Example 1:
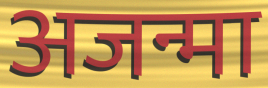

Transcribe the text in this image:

अजन्मा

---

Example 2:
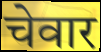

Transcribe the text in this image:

चेवार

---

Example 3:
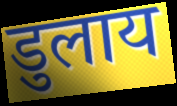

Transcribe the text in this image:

डुलाय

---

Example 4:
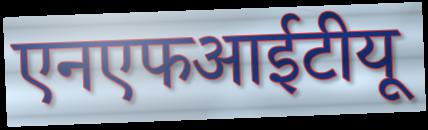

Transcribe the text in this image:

एनएफआईटीयू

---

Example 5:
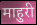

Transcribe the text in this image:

माहुरी